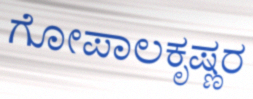
ಗೋಪಾಲಕೃಷ್ಣರ